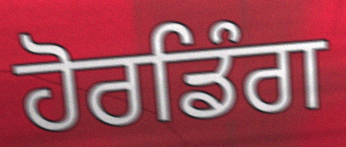
ਹੋਰਡਿੰਗ